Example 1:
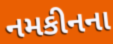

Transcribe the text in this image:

નમકીનના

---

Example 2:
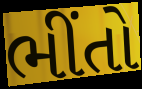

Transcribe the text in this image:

ભીંતો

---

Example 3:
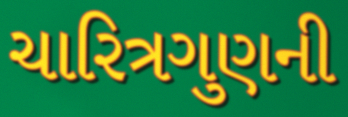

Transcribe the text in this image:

ચારિત્રગુણની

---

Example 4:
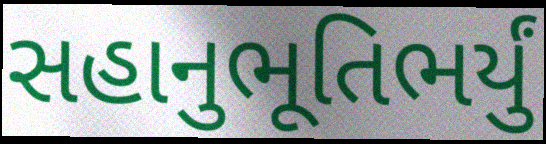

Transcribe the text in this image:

સહાનુભૂતિભર્યું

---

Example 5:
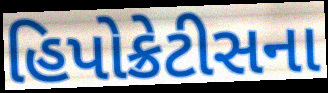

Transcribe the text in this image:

હિપોક્રેટીસના